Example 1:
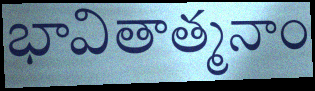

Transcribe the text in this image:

భావితాత్మనాం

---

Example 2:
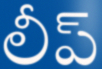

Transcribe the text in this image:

లీప్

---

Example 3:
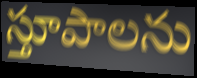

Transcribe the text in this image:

స్తూపాలను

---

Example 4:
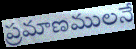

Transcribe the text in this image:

ప్రమాణములనే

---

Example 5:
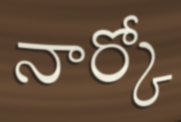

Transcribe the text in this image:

నార్కో